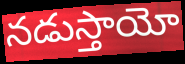
నడుస్తాయో